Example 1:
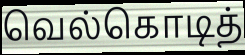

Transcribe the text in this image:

வெல்கொடித்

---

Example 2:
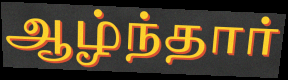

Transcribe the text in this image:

ஆழ்ந்தார்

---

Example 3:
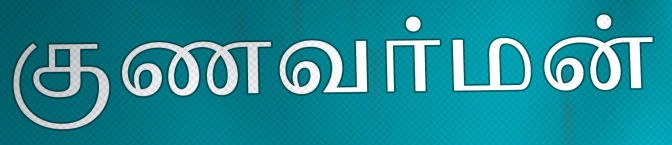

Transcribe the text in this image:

குணவர்மன்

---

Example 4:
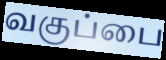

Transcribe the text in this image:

வகுப்பை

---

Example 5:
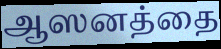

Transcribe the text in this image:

ஆஸனத்தை